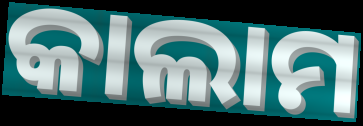
କାଲାମ